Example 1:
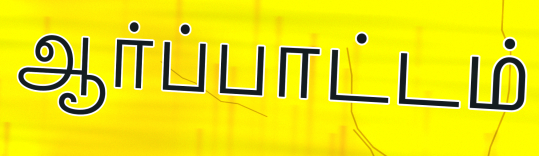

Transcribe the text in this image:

ஆர்ப்பாட்டம்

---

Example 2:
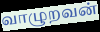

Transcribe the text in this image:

வாழுறவன்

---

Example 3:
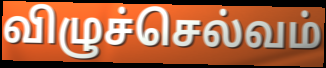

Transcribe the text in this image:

விழுச்செல்வம்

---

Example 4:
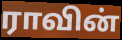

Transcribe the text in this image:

ராவின்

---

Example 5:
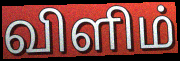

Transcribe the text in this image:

விளிம்